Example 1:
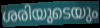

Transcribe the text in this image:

ശരിയുടെയും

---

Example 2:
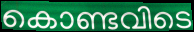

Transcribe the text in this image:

കൊണ്ടവിടെ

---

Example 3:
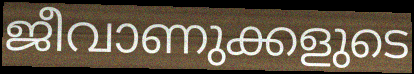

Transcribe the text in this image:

ജീവാണുക്കളുടെ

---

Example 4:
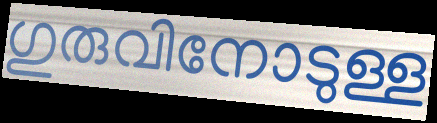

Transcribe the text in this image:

ഗുരുവിനോടുള്ള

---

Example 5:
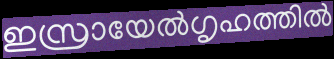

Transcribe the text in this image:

ഇസ്രായേൽഗൃഹത്തിൽ